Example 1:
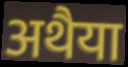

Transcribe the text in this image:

अथैया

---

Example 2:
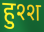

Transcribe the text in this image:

हुश्श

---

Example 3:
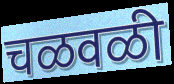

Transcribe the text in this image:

चळवळी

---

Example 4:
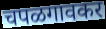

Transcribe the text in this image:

चपळगावकर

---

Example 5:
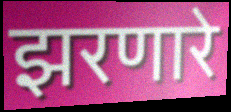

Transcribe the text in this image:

झरणारे